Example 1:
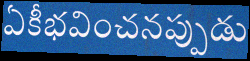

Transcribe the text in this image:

ఏకీభవించనప్పుడు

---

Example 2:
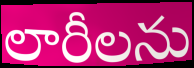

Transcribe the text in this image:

లారీలను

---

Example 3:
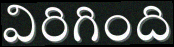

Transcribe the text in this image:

విరిగింది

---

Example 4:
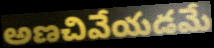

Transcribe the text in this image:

అణచివేయడమే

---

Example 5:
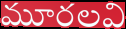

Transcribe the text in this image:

మూరలవి